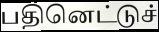
பதினெட்டுச்